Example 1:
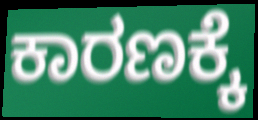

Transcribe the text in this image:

ಕಾರಣಕ್ಕೆ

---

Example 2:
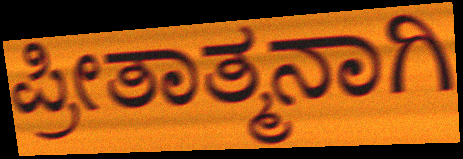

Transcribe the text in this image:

ಪ್ರೀತಾತ್ಮನಾಗಿ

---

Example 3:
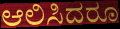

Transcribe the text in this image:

ಆಲಿಸಿದರೂ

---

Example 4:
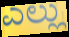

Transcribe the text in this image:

ಎಲ್ಲು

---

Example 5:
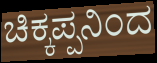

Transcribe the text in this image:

ಚಿಕ್ಕಪ್ಪನಿಂದ